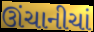
ઊંચાનીચાં